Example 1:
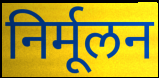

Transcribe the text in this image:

निर्मूलन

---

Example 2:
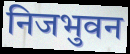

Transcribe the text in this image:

निजभुवन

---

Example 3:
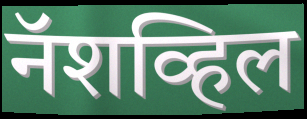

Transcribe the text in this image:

नॅशव्हिल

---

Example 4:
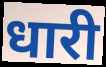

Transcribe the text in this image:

धारी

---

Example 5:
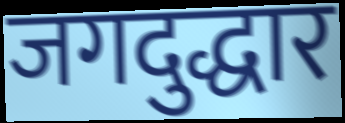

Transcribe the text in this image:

जगदुद्धार